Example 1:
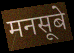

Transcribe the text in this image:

मनसूबे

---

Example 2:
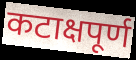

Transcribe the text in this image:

कटाक्षपूर्ण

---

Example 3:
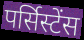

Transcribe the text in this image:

पर्सिस्टेंस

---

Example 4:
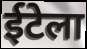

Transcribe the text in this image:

ईटेला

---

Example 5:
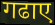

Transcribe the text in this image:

गढाए